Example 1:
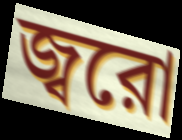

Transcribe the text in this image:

জ্বরো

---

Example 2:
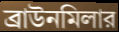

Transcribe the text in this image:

ব্রাউনমিলার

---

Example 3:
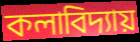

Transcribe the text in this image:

কলাবিদ্যায়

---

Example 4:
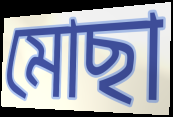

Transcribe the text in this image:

মোছা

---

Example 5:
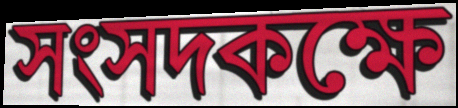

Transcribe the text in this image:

সংসদকক্ষে